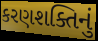
કરણશક્તિનું